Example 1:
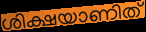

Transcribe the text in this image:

ശിക്ഷയാണിത്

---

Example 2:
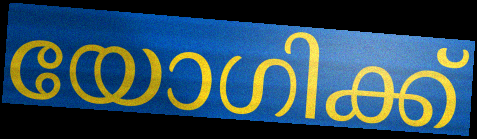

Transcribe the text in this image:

യോഗിക്ക്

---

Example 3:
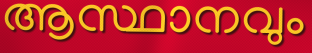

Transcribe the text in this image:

ആസ്ഥാനവും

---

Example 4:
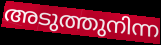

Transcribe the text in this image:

അടുത്തുനിന്ന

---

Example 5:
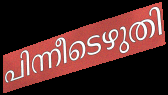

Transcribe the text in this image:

പിന്നീടെഴുതി